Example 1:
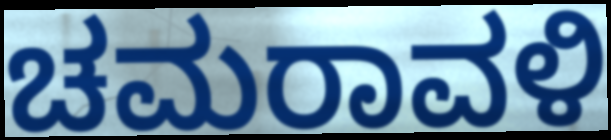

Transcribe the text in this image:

ಚಮರಾವಳಿ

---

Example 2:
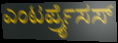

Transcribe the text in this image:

ಎಂಟರ್ಪ್ರೈಸಸ್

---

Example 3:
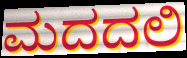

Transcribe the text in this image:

ಮದದಲಿ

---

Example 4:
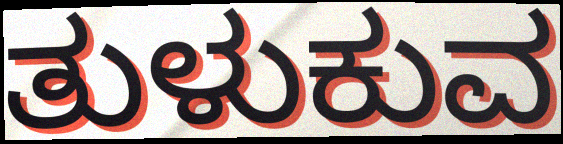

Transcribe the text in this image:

ತುಳುಕುವ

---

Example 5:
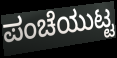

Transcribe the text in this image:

ಪಂಚೆಯುಟ್ಟ